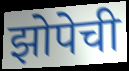
झोपेची